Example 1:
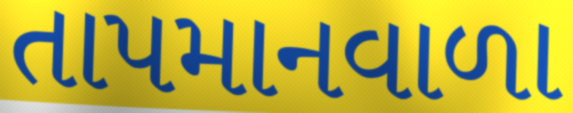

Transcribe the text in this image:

તાપમાનવાળા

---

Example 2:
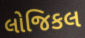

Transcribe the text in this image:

લોજિકલ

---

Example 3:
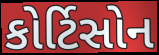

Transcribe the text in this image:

કોર્ટિસોન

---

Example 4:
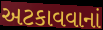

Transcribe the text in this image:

અટકાવવાનાં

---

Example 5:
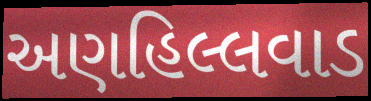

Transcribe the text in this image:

અણહિલ્લવાડ